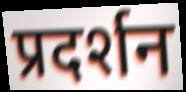
प्रदर्शन